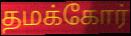
தமக்கோர்